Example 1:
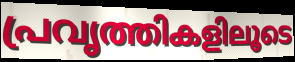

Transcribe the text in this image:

പ്രവൃത്തികളിലൂടെ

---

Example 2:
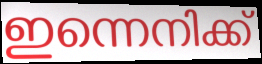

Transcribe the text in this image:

ഇന്നെനിക്ക്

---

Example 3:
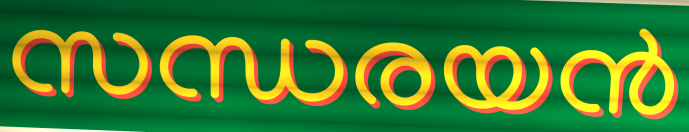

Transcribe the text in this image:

സന്ധരയൻ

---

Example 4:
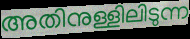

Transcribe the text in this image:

അതിനുള്ളിലിടുന്ന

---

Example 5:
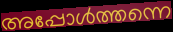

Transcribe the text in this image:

അപ്പോൾത്തന്നെ